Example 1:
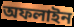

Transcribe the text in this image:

অফলাইন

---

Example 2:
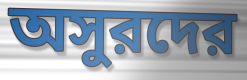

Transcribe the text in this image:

অসুরদের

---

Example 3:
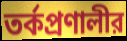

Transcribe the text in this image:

তর্কপ্রণালীর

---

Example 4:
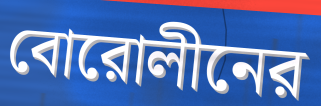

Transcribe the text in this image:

বোরোলীনের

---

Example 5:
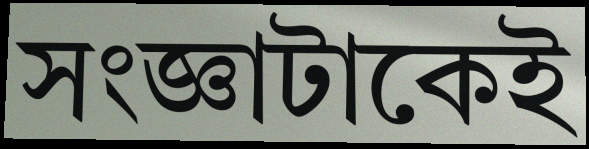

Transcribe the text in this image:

সংজ্ঞাটাকেই